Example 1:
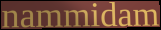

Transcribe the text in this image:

nammidam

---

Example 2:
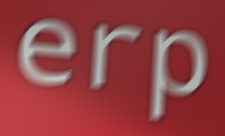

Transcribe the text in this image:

erp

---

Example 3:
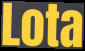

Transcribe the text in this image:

Lota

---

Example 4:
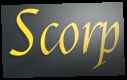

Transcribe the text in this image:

Scorp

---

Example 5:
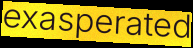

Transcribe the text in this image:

exasperated